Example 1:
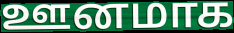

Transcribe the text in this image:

ஊனமாக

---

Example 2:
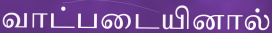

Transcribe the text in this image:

வாட்படையினால்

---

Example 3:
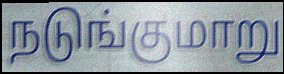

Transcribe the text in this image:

நடுங்குமாறு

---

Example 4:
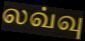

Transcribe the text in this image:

லவ்வு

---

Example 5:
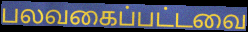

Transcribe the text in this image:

பலவகைப்பட்டவை